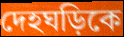
দেহঘড়িকে